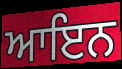
ਆਇਨ